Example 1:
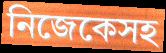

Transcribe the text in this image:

নিজেকেসহ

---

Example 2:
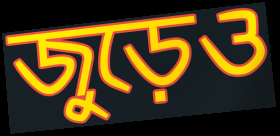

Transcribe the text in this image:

জুড়েও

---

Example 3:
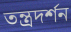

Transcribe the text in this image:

তন্ত্রদর্শন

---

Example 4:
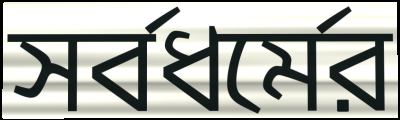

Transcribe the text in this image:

সর্বধর্মের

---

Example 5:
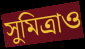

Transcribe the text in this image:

সুমিত্রাও